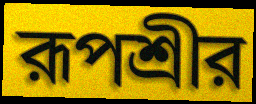
রূপশ্রীর